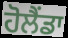
ਹੋਲੈਂਡਾ